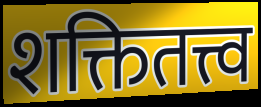
शक्तितत्त्व